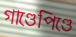
গাণ্ডেপিণ্ডে